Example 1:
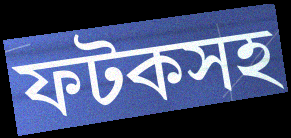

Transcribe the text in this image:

ফটকসহ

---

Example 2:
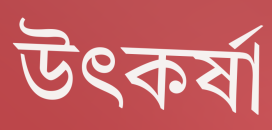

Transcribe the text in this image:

উৎকর্ষা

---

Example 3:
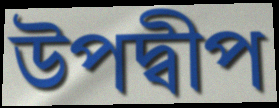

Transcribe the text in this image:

উপদ্বীপ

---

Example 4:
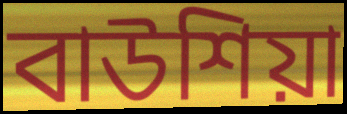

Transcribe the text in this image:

বাউশিয়া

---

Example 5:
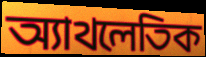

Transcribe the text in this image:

অ্যাথলেতিক